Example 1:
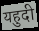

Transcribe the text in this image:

यहुदी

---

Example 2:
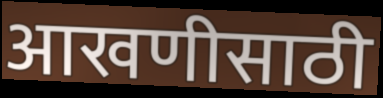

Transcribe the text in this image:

आखणीसाठी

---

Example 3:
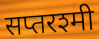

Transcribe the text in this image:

सप्तरश्मी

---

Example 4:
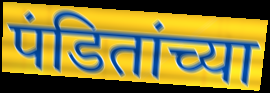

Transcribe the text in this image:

पंडितांच्या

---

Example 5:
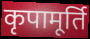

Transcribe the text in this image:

कृपामूर्ति